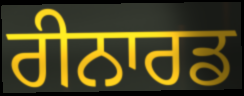
ਰੀਨਾਰਡ